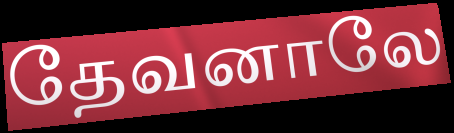
தேவனாலே